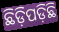
ଛିଡ଼ିପଡ଼ିଛି